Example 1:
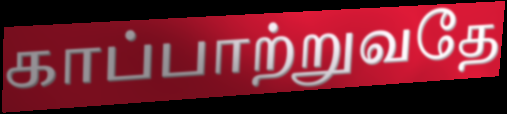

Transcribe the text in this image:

காப்பாற்றுவதே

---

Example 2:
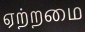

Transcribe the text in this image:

ஏற்றமை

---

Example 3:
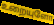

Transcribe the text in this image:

உறையுளோ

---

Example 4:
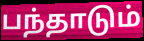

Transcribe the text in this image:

பந்தாடும்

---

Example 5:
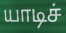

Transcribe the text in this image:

யாடிச்